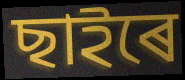
ছাইৰে